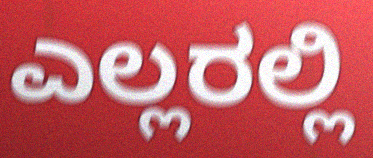
ಎಲ್ಲರಲ್ಲಿ